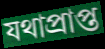
যথাপ্ৰাপ্ত